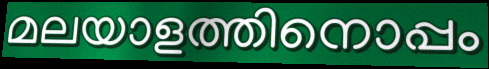
മലയാളത്തിനൊപ്പം